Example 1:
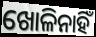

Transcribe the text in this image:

ଖୋଳିନାହିଁ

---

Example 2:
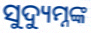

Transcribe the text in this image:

ସୁଦ୍ୟୁମ୍ନଙ୍କ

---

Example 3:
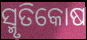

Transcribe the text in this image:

ସ୍ମୃତିକୋଷ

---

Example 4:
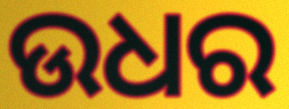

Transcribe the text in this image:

ଉଧର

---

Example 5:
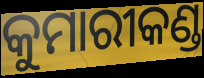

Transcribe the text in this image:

କୁମାରୀକଣ୍ଡ